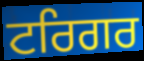
ਟਰਿਗਰ